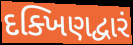
દક્ખિણદ્વારં